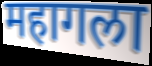
महागला